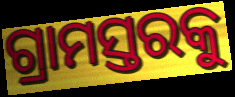
ଗ୍ରାମସ୍ତରକୁ